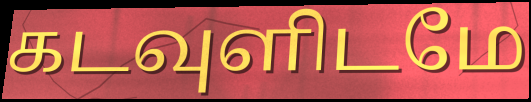
கடவுளிடமே